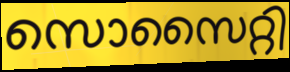
സൊസൈറ്റി